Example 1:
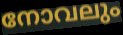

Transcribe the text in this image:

നോവലും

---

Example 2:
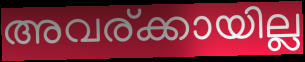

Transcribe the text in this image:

അവര്ക്കായില്ല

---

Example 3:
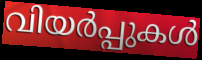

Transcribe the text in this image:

വിയർപ്പുകൾ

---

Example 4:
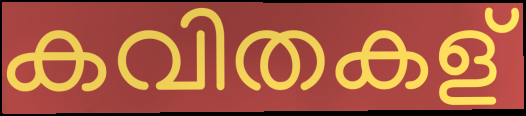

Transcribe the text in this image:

കവിതകള്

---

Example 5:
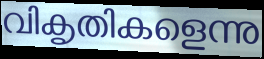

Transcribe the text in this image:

വികൃതികളെന്നു